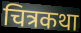
चित्रकथा